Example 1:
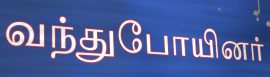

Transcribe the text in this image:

வந்துபோயினர்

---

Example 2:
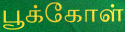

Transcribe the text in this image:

பூக்கோள்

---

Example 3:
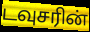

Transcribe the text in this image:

டவுசரின்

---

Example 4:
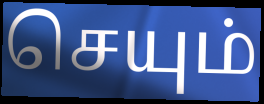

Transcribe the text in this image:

செயும்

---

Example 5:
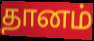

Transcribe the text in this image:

தானம்